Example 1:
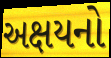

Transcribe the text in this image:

અક્ષયનો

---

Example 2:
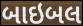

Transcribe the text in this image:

બાઇબલ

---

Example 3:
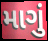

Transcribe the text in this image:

માગું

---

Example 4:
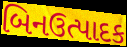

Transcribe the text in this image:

બિનઉત્પાદક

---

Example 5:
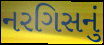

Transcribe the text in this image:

નરગિસનું